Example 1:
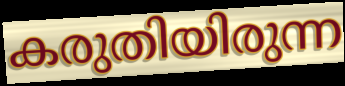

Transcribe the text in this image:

കരുതിയിരുന്ന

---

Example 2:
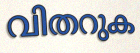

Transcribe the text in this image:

വിതറുക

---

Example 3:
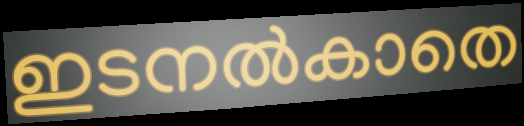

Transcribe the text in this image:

ഇടനൽകാതെ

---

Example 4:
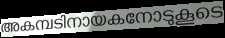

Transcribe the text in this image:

അകമ്പടിനായകനോടുകൂടെ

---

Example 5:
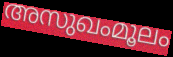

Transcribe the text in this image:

അസുഖംമൂലം